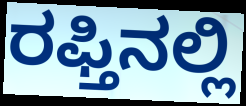
ರಫ್ತಿನಲ್ಲಿ